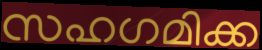
സഹഗമിക്ക